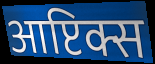
आप्टिक्स